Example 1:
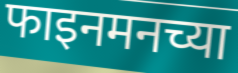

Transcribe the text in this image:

फाइनमनच्या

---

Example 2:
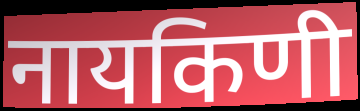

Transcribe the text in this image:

नायकिणी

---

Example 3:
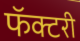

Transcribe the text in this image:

फॅक्टरी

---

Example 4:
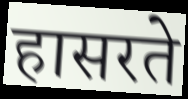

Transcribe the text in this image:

हासरते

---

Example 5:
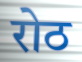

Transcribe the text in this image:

रोठ